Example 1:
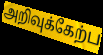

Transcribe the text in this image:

அறிவுக்கேற்ப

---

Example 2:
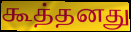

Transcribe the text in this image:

கூத்தனது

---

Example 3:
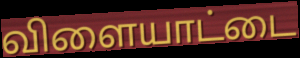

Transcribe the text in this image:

விளையாட்டை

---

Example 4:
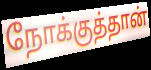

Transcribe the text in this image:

நோக்குத்தான்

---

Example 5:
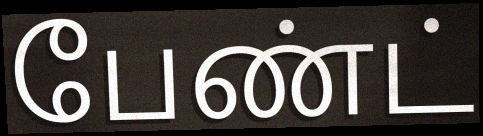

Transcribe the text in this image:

பேண்ட்